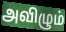
அவிழும்